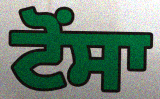
ਟੋਂਸਾ